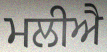
ਮਲੀਐ